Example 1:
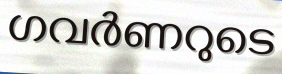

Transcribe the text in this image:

ഗവർണറുടെ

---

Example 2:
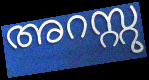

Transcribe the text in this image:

അറസ്റ്റു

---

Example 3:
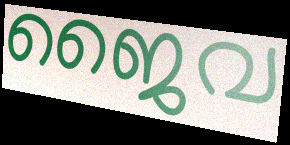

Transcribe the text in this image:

ജൈവ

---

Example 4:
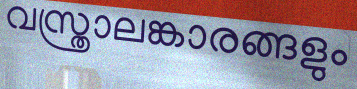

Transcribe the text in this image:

വസ്ത്രാലങ്കാരങ്ങളും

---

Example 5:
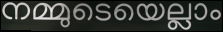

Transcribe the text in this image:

നമ്മുടെയെല്ലാം